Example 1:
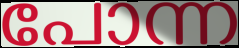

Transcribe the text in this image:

പോന്ന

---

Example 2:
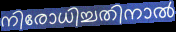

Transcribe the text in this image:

നിരോധിച്ചതിനാൽ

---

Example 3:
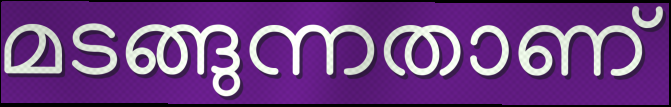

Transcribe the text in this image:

മടങ്ങുന്നതാണ്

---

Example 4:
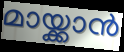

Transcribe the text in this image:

മായ്ക്കാൻ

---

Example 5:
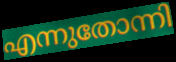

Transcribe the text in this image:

എന്നുതോന്നി